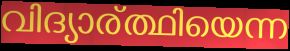
വിദ്യാര്ത്ഥിയെന്ന